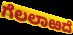
ಗೆಲಲಾಱದೆ